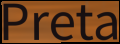
Preta